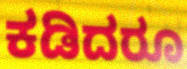
ಕಡಿದರೂ